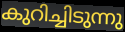
കുറിച്ചിടുന്നു